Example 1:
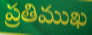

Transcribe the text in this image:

ప్రతిముఖ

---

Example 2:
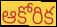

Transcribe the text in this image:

ఆకోరిక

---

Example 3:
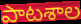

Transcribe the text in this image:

పాటశాల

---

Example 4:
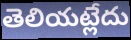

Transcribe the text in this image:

తెలియట్లేదు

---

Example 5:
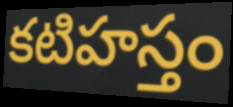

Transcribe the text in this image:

కటిహస్తం